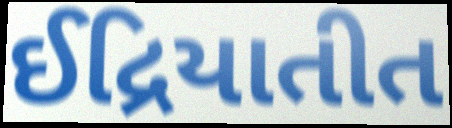
ઈદ્રિયાતીત